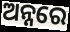
ଅନ୍ନରେ